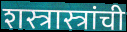
शस्त्रास्त्रांची